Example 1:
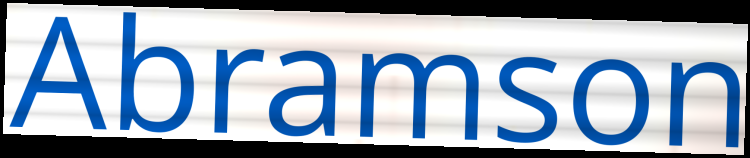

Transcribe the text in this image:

Abramson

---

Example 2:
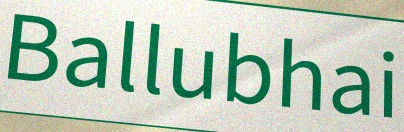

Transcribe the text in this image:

Ballubhai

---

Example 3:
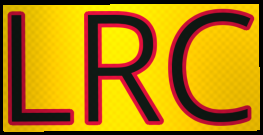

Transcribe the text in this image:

LRC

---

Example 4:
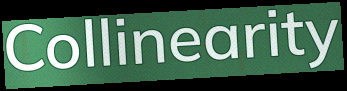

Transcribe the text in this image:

Collinearity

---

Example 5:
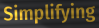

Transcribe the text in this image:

Simplifying